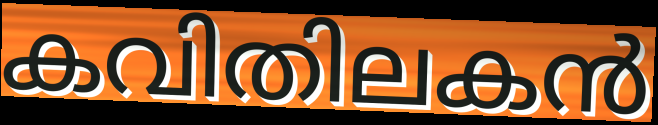
കവിതിലകൻ